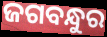
ଜଗବନ୍ଧୁର